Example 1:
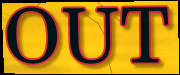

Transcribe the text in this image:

OUT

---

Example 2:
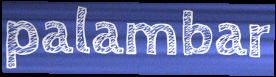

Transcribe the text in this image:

palambar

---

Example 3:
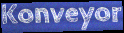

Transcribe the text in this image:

Konveyor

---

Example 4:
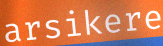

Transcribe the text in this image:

arsikere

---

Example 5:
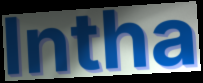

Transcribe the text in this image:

Intha